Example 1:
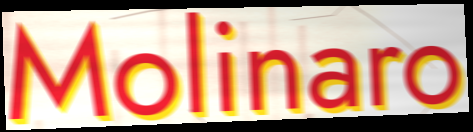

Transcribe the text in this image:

Molinaro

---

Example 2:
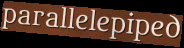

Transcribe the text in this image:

parallelepiped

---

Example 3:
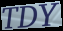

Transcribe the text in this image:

TDY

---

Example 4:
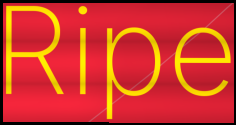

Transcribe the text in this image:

Ripe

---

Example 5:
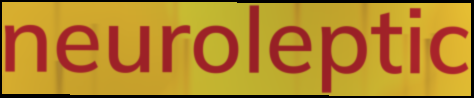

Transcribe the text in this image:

neuroleptic